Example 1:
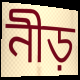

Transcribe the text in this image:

নীড়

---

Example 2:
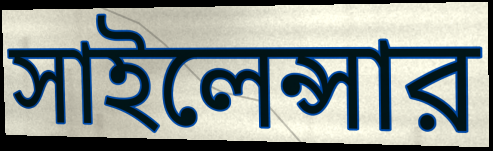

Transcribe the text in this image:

সাইলেন্সার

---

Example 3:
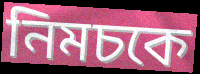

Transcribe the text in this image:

নিমচকে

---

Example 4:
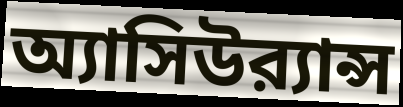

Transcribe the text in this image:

অ্যাসিউর‍্যান্স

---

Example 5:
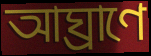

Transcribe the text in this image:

আঘ্রাণে